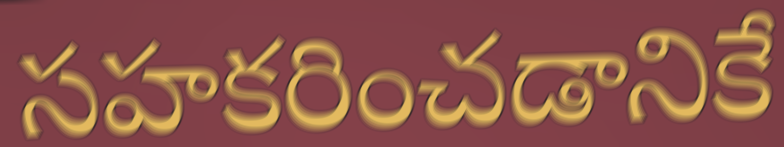
సహకరించడానికే